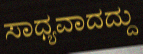
ಸಾಧ್ಯವಾದದ್ದು